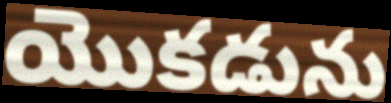
యొకడును